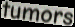
tumors